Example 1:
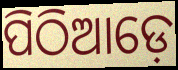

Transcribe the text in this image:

ପିଠିଆଡ଼େ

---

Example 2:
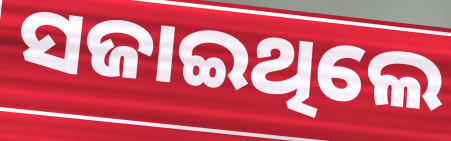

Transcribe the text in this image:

ସଜାଇଥିଲେ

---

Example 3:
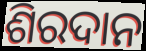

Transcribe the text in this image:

ଶିରଦାନ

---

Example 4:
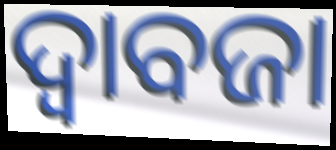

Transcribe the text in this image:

ଦ୍ୱାବଜା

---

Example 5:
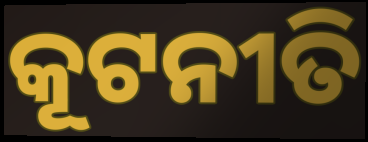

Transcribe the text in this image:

କୂଟନୀତି